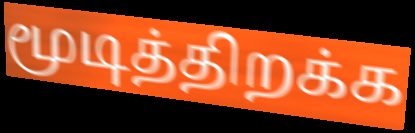
மூடித்திறக்க